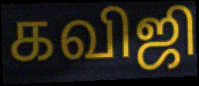
கவிஜி